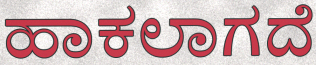
ಹಾಕಲಾಗದೆ